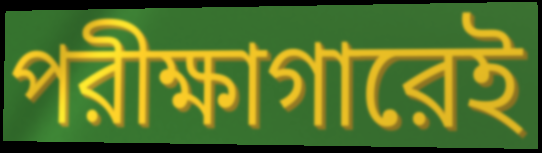
পরীক্ষাগারেই